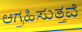
ಆಗ್ರಹಿಸುತ್ತವೆ